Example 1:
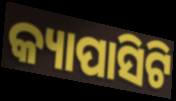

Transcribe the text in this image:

କ୍ୟାପାସିଟି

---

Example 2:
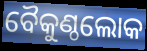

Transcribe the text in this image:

ବୈକୁଣ୍ଠଲୋକ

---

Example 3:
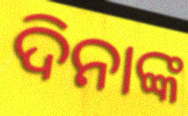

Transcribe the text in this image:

ଦିନାଙ୍କ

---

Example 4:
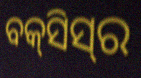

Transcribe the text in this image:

ବକ୍‌ସିସ୍‌ର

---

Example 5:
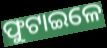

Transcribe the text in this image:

ଫୁଟାଇଳେ